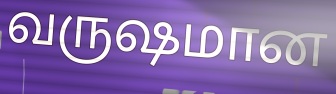
வருஷமான